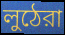
লুঠেরা